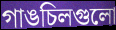
গাঙচিলগুলো